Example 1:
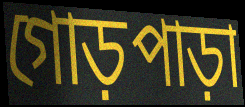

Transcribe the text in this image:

গোড়পাড়া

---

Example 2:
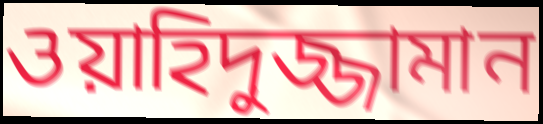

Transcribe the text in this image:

ওয়াহিদুজ্জামান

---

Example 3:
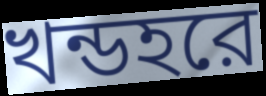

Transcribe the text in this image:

খন্ডহরে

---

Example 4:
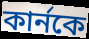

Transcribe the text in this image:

কার্নকে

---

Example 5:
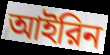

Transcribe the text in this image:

আইরিন